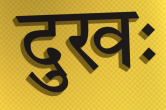
दुखः